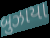
બુઝાયા